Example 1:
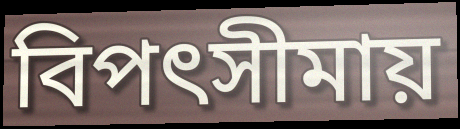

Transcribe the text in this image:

বিপৎসীমায়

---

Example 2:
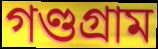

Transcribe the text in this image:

গণ্ডগ্রাম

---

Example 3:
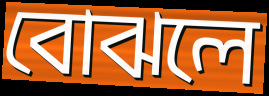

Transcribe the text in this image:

বোঝলে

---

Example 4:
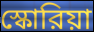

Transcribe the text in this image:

স্কোরিয়া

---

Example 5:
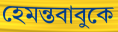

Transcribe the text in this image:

হেমন্তবাবুকে